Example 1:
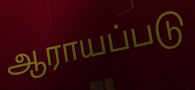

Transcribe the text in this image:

ஆராயப்படு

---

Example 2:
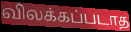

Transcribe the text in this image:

விலக்கப்படாத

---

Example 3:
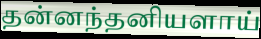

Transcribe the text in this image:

தன்னந்தனியளாய்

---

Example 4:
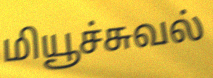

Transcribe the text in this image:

மியூச்சுவல்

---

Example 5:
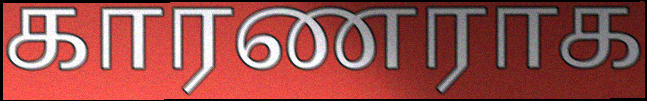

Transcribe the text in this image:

காரணராக